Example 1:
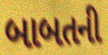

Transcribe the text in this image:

બાબતની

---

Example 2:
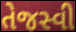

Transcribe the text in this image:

તેજસ્વી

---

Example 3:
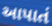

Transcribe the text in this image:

આપાતં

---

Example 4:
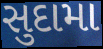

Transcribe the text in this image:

સુદામા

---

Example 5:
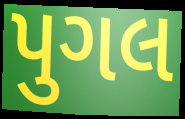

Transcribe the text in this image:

પુગલ